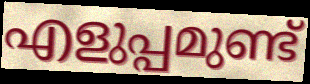
എളുപ്പമുണ്ട്